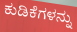
ಕುಡಿಕೆಗಳನ್ನು